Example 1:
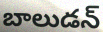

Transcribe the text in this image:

బాలుడన్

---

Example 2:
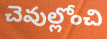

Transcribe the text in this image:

చెవుల్లోంచి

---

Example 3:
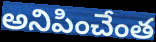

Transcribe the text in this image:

అనిపించేంత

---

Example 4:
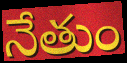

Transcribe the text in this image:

నేతుం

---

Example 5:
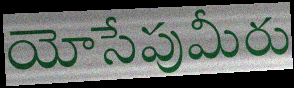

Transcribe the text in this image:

యోసేపుమీరు